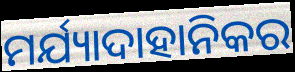
ମର୍ଯ୍ୟାଦାହାନିକର